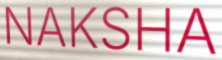
NAKSHA